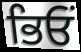
ਭਿਓਂ